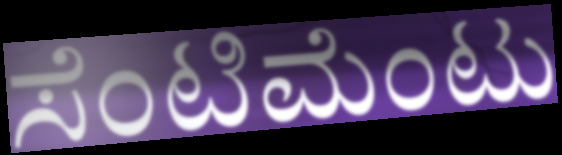
ಸೆಂಟಿಮೆಂಟು